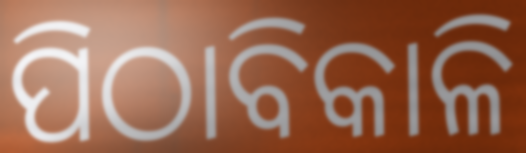
ପିଠାବିକାଳି